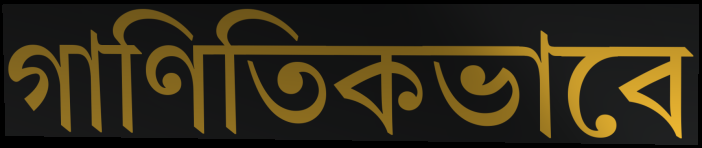
গাণিতিকভাবে